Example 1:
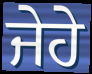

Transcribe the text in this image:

ਜੇਹੇ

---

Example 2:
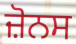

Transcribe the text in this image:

ਜ਼ੋਨਸ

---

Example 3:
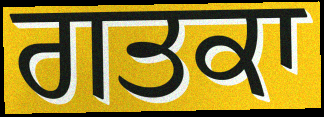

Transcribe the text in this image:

ਗਤਕਾ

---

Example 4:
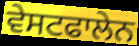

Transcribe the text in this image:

ਵੇਸਟਫਾਲੇਨ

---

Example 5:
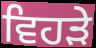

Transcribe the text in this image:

ਵਿਹੜੇ